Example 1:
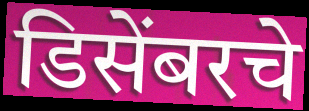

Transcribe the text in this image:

डिसेंबरचे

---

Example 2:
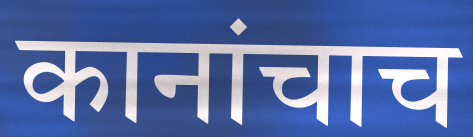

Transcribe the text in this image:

कानांचाच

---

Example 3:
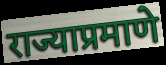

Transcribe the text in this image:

राज्याप्रमाणे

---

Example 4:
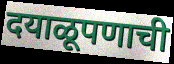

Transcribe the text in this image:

दयाळूपणाची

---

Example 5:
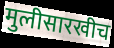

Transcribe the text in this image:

मुलीसारखीच